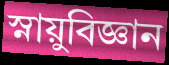
স্নায়ুবিজ্ঞান